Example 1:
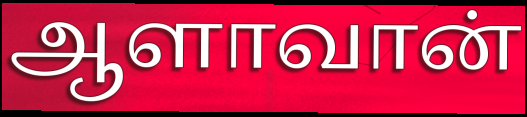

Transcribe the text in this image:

ஆளாவான்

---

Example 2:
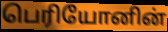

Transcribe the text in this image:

பெரியோனின்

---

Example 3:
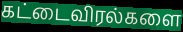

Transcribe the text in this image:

கட்டைவிரல்களை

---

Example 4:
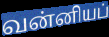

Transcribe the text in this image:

வன்னியப்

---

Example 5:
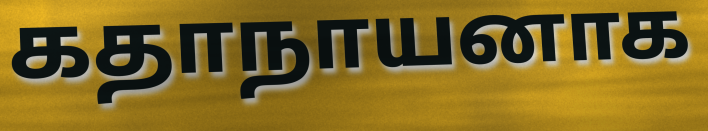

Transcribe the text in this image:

கதாநாயனாக